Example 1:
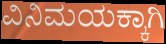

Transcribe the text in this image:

ವಿನಿಮಯಕ್ಕಾಗಿ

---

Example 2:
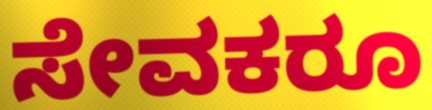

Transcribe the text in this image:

ಸೇವಕರೂ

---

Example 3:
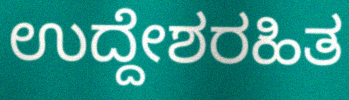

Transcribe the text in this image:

ಉದ್ದೇಶರಹಿತ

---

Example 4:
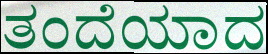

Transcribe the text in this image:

ತಂದೆಯಾದ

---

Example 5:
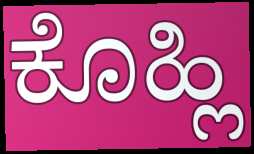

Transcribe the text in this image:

ಕೊಹ್ಲಿ